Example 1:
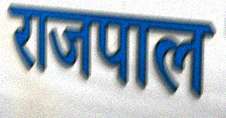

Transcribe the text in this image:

राजपाल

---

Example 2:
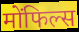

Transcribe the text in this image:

मोंफिल्स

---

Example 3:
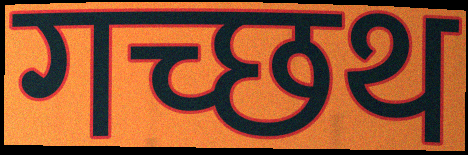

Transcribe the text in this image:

गच्छथ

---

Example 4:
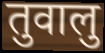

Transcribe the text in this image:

तुवालु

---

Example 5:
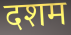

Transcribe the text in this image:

दशम